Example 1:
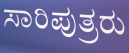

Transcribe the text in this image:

ಸಾರಿಪುತ್ರರು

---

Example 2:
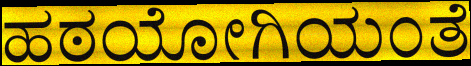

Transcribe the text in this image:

ಹಠಯೋಗಿಯಂತೆ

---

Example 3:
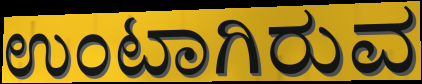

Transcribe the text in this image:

ಉಂಟಾಗಿರುವ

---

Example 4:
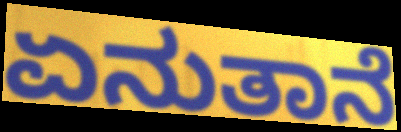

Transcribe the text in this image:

ಏನುತಾನೆ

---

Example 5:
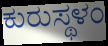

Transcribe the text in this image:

ಕುರುಸ್ಥಳಂ